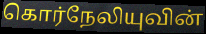
கொர்நேலியுவின்